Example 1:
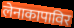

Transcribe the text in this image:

लेनाकापाविर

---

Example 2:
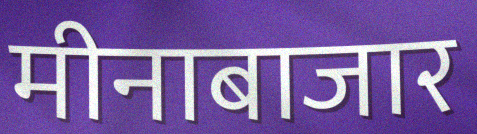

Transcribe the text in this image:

मीनाबाजार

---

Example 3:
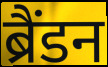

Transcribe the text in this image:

ब्रैंडन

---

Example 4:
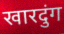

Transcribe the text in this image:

खारदुंग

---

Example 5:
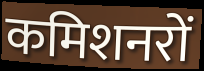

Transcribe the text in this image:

कमिशनरों